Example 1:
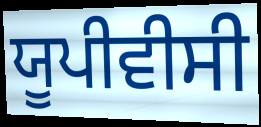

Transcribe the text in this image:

ਯੂਪੀਵੀਸੀ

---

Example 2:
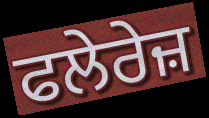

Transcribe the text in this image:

ਫਲੇਰੇਜ਼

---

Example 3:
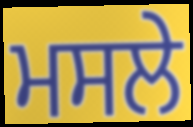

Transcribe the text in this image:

ਮਸਲੇ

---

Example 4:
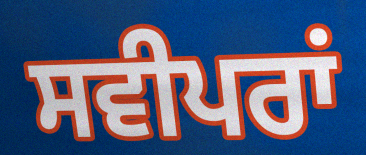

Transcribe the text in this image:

ਸਵੀਪਰਾਂ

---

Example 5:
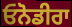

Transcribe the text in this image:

ਓਨੋਡੀਰਾ